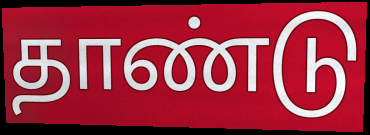
தாண்டு